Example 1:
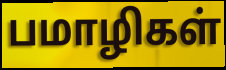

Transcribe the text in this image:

பமாழிகள்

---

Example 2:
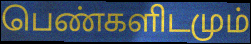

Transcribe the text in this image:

பெண்களிடமும்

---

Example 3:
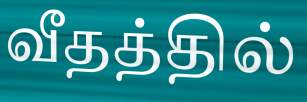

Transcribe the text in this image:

வீதத்தில்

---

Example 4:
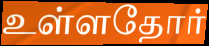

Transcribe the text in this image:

உள்ளதோர்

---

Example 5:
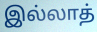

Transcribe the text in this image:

இல்லாத்